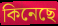
কিনেছে